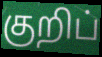
குறிப்